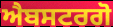
ਐਬਸਟਰਗੋ